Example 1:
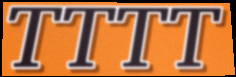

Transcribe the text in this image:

TTTT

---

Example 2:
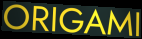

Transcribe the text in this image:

ORIGAMI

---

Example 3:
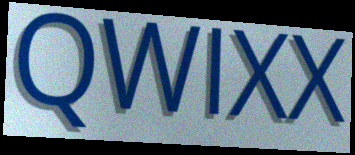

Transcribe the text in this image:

QWIXX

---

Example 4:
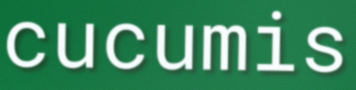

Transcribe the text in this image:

cucumis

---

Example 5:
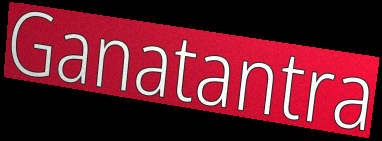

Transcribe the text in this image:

Ganatantra